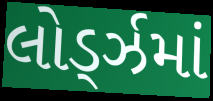
લોર્ડ્ઝમાં